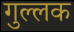
गुल्लक